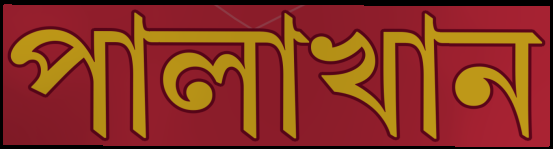
পালাখান